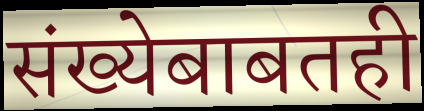
संख्येबाबतही